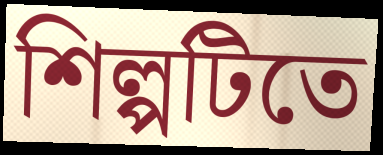
শিল্পটিতে